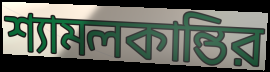
শ্যামলকান্তির